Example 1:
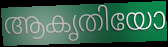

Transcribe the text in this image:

ആകൃതിയോ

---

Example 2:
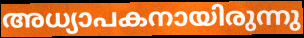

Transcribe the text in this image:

അധ്യാപകനായിരുന്നു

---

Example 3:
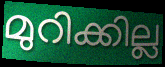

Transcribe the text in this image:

മുറിക്കില്ല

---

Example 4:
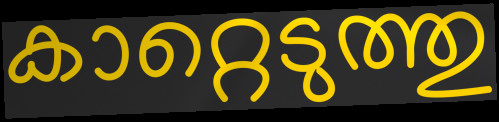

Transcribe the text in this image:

കാറ്റെടുത്തു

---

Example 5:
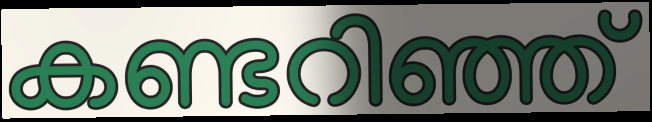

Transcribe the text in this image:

കണ്ടറിഞ്ഞ്